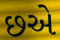
છએ